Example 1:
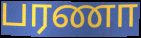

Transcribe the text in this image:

பரணா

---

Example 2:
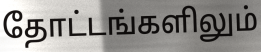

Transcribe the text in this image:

தோட்டங்களிலும்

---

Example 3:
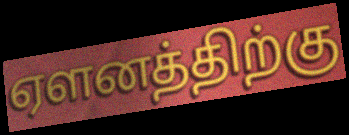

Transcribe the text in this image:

ஏளனத்திற்கு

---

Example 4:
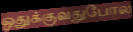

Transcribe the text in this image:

ஒதுக்குவதுபோல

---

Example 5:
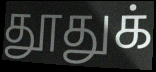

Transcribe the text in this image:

தூதுக்